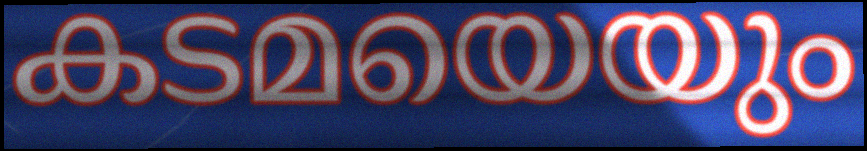
കടമയെയും